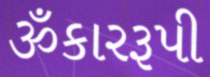
ૐકારરૂપી